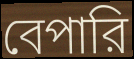
বেপারি